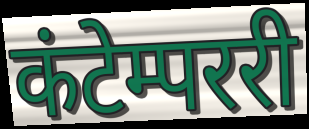
कंटेम्पररी